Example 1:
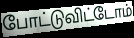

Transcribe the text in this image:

போட்டுவிட்டோம்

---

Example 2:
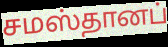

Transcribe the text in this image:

சமஸ்தானப்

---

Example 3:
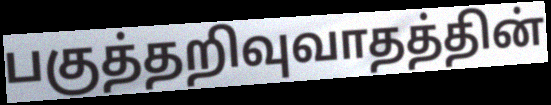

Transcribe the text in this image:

பகுத்தறிவுவாதத்தின்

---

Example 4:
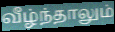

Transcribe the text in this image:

வீழ்ந்தாலும்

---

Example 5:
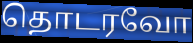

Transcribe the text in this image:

தொடரவோ